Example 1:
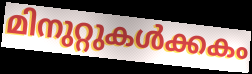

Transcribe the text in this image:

മിനുറ്റുകൾക്കകം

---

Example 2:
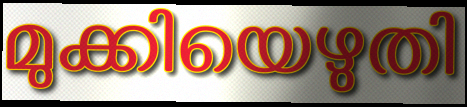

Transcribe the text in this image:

മുക്കിയെഴുതി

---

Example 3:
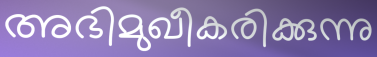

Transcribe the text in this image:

അഭിമുഖീകരിക്കുന്നു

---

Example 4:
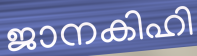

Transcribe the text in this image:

ജാനകിഹി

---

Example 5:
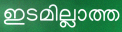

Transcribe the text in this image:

ഇടമില്ലാത്ത